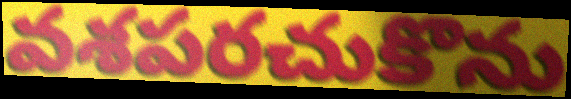
వశపరచుకొను